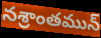
నశ్రాంతమున్